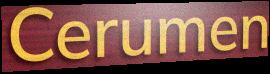
Cerumen